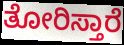
ತೋರಿಸ್ತಾರೆ